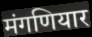
मंगणियार